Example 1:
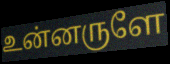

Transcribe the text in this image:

உன்னருளே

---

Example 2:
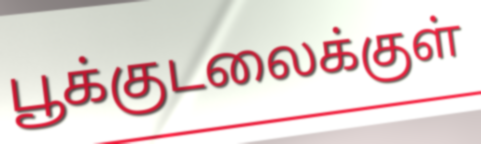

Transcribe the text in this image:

பூக்குடலைக்குள்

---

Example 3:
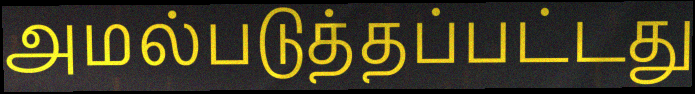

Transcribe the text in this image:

அமல்படுத்தப்பட்டது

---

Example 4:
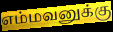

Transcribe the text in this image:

எம்மவனுக்கு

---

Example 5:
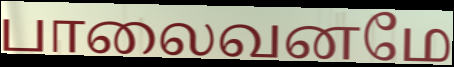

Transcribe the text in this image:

பாலைவனமே